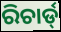
ରିଚାର୍ଡ୍